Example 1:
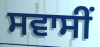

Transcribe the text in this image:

ਸਵਾਸੀਂ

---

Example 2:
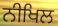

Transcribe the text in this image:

ਨੀਖਿਲ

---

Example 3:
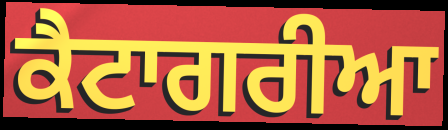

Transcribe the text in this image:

ਕੈਟਾਗਰੀਆ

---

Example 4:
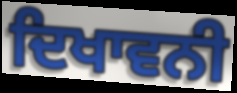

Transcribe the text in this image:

ਦਿਖਾਵਨੀ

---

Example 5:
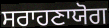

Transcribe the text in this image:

ਸਰਾਹਣਾਯੋਗ